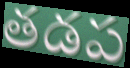
తడప